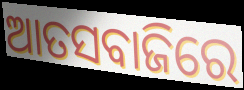
ଆତସବାଜିରେ